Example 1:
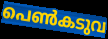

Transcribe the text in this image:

പെൺകടുവ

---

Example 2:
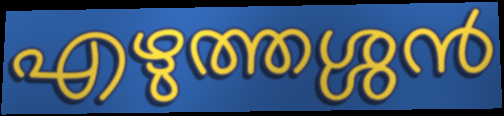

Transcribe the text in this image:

എഴുത്തശ്ശൻ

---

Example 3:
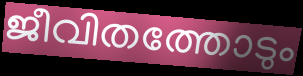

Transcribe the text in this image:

ജീവിതത്തോടും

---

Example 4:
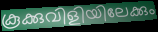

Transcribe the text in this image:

കൂക്കുവിളിയിലേക്കും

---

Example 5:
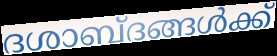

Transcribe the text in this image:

ദശാബ്ദങ്ങൾക്ക്